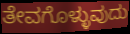
ತೇವಗೊಳ್ಳುವುದು